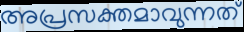
അപ്രസക്തമാവുന്നത്